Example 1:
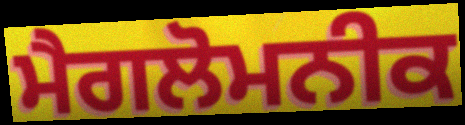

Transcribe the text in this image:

ਮੈਗਲੋਮਨੀਕ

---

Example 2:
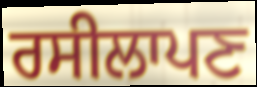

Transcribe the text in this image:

ਰਸੀਲਾਪਣ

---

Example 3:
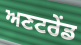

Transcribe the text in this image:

ਅਣਟਰੇਂਡ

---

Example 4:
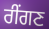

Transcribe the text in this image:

ਰੀਂਗਣ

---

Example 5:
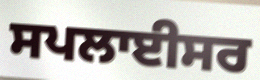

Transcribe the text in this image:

ਸਪਲਾਈਸਰ